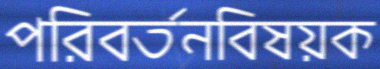
পরিবর্তনবিষয়ক